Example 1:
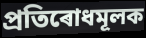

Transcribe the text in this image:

প্ৰতিৰোধমূলক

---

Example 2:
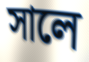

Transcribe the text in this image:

সালে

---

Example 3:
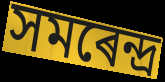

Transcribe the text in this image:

সমৰেন্দ্ৰ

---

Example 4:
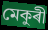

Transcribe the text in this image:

মেকুৰী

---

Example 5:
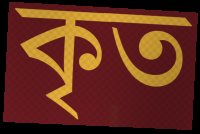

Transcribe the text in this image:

কৃত